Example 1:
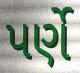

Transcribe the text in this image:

પર્ણે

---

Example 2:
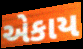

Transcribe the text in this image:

એકાય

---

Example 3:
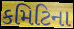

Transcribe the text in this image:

કમિટિના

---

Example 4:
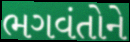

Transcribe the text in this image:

ભગવંતોને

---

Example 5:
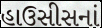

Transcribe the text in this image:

હાઉસીસનાં